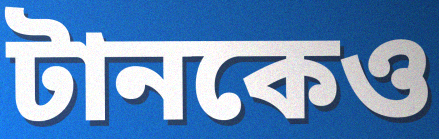
টানকেও